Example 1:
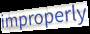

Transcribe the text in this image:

improperly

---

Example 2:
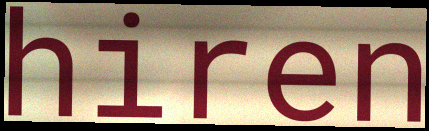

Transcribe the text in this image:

hiren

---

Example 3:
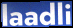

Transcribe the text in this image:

laadli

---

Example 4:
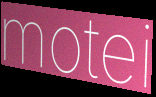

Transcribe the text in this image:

motei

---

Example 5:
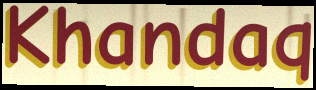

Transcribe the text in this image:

Khandaq